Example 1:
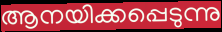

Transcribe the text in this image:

ആനയിക്കപ്പെടുന്നു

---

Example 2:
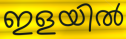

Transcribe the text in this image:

ഇളയിൽ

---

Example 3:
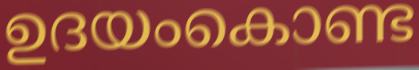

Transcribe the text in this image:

ഉദയംകൊണ്ട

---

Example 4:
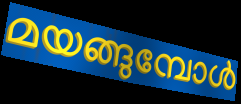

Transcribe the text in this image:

മയങ്ങുമ്പോൾ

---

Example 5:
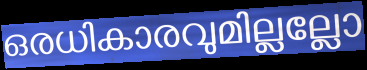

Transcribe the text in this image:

ഒരധികാരവുമില്ലല്ലോ